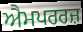
ਐਮਪਰਰਜ਼